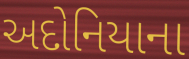
અદોનિયાના